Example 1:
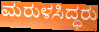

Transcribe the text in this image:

ಮರುಳಸಿದ್ಧರು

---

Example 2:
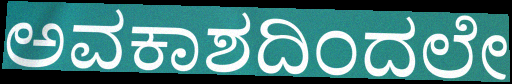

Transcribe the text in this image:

ಅವಕಾಶದಿಂದಲೇ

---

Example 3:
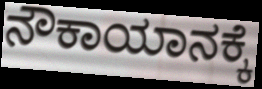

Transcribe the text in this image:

ನೌಕಾಯಾನಕ್ಕೆ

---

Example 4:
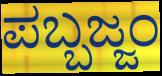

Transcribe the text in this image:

ಪಬ್ಬಜ್ಜಂ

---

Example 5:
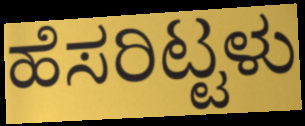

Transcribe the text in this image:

ಹೆಸರಿಟ್ಟಳು